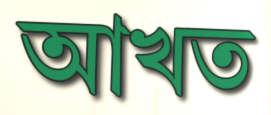
আখত